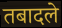
तबादले